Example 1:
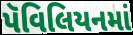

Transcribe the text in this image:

પૅવિલિયનમાં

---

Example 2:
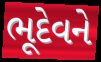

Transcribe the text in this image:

ભૂદેવને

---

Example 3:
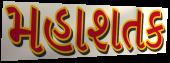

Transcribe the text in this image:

મહાશતક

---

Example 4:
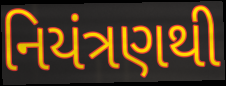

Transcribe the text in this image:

નિયંત્રણથી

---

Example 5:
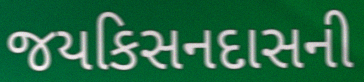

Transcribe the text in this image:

જયકિસનદાસની